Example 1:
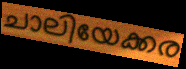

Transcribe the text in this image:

ചാലിയേക്കര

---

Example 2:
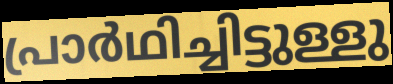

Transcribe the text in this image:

പ്രാർഥിച്ചിട്ടുള്ളു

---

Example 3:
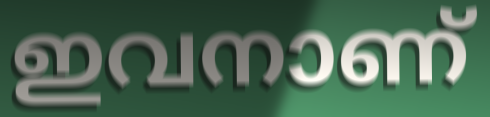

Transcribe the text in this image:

ഇവനാണ്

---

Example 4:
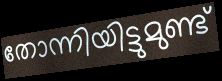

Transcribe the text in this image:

തോന്നിയിട്ടുമുണ്ട്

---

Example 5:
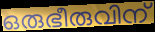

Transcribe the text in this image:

ഒരുഭീരുവിന്